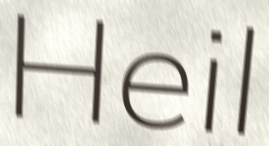
Heil